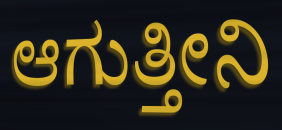
ಆಗುತ್ತೀನಿ